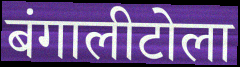
बंगालीटोला